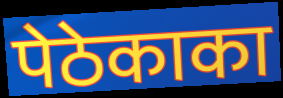
पेठेकाका